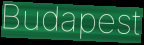
Budapest